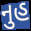
નુહ